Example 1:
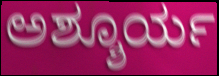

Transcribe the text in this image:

ಅಶ್ಶೂರ್ಯ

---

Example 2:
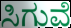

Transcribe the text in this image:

ಸಿಗುವೆ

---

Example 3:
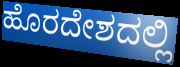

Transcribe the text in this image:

ಹೊರದೇಶದಲ್ಲಿ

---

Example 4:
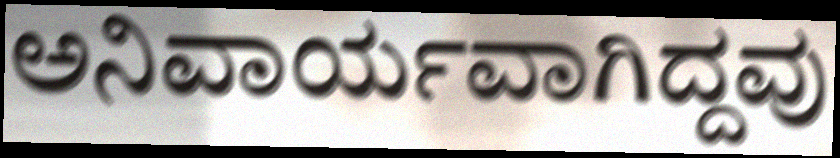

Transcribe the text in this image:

ಅನಿವಾರ್ಯವಾಗಿದ್ದವು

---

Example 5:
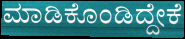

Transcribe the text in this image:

ಮಾಡಿಕೊಂಡಿದ್ದೇಕೆ